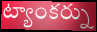
ట్యాంకర్ను